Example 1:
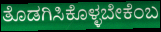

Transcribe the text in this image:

ತೊಡಗಿಸಿಕೊಳ್ಳಬೇಕೆಂಬ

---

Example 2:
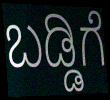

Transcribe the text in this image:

ಬಡ್ಡಿಗೆ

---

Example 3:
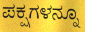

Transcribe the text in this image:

ಪಕ್ಷಗಳನ್ನೂ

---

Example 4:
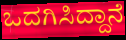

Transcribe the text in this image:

ಒದಗಿಸಿದ್ದಾನೆ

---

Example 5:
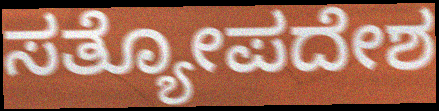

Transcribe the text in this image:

ಸತ್ಯೋಪದೇಶ